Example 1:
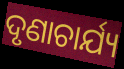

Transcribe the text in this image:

ଦୃଣାଚାର୍ଯ୍ୟ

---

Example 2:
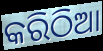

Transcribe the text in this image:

କରିଠିଆ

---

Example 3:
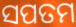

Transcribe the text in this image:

ସପତମ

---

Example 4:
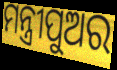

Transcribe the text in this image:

ମନ୍ତ୍ରୀପୁଅର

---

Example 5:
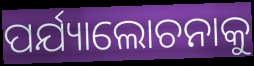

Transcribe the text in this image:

ପର୍ଯ୍ୟାଲୋଚନାକୁ